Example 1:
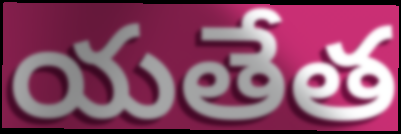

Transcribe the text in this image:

యతేత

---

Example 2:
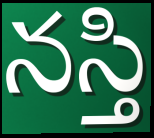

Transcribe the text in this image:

నస్తి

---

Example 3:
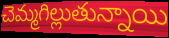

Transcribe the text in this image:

చెమ్మగిల్లుతున్నాయి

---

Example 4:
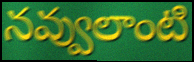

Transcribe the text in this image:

నవ్వులాంటి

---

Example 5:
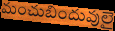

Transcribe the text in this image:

మంచుబిందువులై